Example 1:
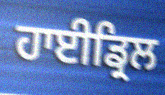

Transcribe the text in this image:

ਹਾਈਡ੍ਰਿਲ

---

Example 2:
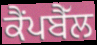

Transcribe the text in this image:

ਕੈਂਪਬੈੱਲ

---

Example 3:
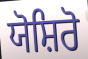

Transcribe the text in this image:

ਯੋਸ਼ਿਰੋ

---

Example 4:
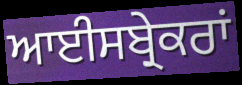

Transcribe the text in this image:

ਆਈਸਬ੍ਰੇਕਰਾਂ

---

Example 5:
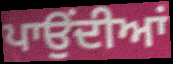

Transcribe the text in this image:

ਪਾਉਂਦੀਆਂ